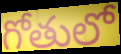
గోతులో